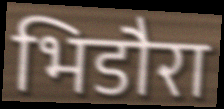
भिडौरा